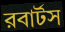
রবার্টস